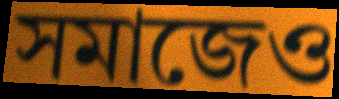
সমাজেও